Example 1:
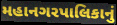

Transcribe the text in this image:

મહાનગરપાલિકાનું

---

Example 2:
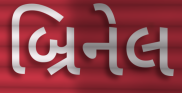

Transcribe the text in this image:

બ્રિનેલ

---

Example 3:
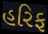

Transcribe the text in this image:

હરિફ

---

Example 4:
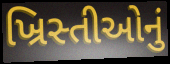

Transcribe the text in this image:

ખ્રિસ્તીઓનું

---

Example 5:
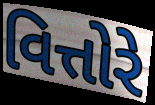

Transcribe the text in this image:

વિત્તોરે